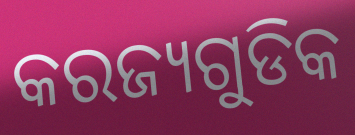
କରଜ୍ୟଗୁଡିକ